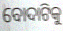
ବୋଦାଟିକୁ